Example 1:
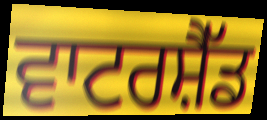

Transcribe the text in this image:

ਵਾਟਰਸ਼ੈੱਡ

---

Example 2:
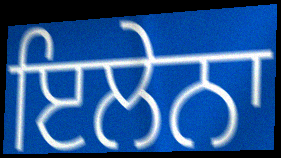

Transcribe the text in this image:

ਇਲੇਨਾ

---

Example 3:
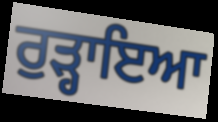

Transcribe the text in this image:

ਰੁੜ੍ਹਾਇਆ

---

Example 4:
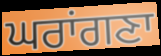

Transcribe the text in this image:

ਘਰਾਂਗਣਾ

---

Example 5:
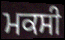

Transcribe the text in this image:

ਮਕਸੀ